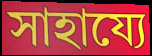
সাহায্যে